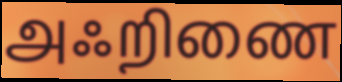
அஃறிணை